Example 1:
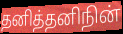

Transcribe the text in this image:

தனித்தனிநின்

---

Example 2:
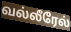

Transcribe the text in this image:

வல்லீரேல்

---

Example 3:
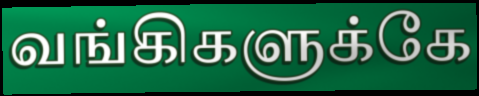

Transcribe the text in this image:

வங்கிகளுக்கே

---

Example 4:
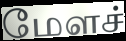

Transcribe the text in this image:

மேளச்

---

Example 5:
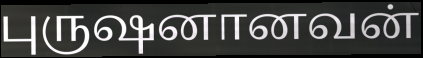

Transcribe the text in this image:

புருஷனானவன்